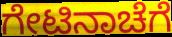
ಗೇಟಿನಾಚೆಗೆ